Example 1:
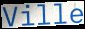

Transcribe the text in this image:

Ville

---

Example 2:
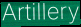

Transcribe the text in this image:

Artillery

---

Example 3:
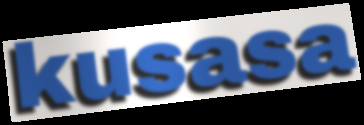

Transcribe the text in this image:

kusasa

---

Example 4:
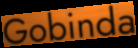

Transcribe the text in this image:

Gobinda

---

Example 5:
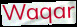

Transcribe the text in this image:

Waqar